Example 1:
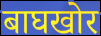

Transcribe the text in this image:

बाघखोर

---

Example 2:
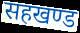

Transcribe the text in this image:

सहखण्ड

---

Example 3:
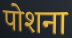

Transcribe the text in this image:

पोशना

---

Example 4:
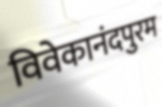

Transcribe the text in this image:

विवेकानंदपुरम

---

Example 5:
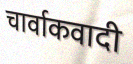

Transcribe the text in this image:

चार्वाकवादी